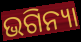
ଭଗିନ୍ୟା